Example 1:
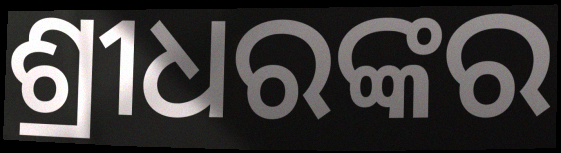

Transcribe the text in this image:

ଶ୍ରୀଧରଙ୍କର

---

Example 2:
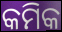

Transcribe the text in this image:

କମିକ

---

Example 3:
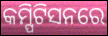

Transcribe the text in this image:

କମ୍ପିଟିସନରେ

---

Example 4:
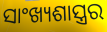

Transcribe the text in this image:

ସାଂଖ୍ୟଶାସ୍ତ୍ରର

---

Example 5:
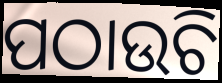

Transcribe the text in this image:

ପଠାଉଚି